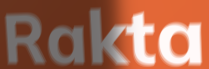
Rakta